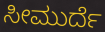
ಸೀಮುರ್ದೆ